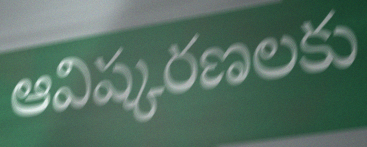
ఆవిష్కరణలకు